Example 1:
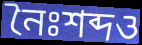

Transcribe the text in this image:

নৈঃশব্দও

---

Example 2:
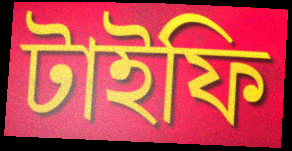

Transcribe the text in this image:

টাইফি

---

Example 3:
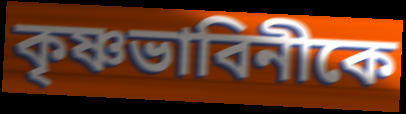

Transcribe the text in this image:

কৃষ্ণভাবিনীকে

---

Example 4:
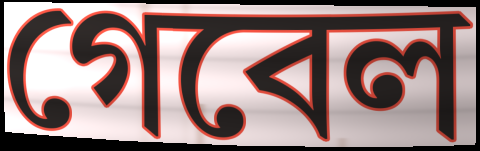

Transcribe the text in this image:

গেবেল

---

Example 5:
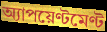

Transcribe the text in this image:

অ্যাপয়েণ্টমেণ্ট